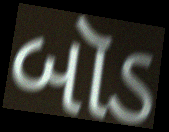
બૉડ